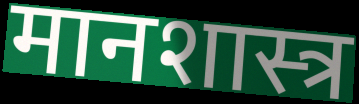
मानशास्त्र